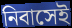
নিবাসেই